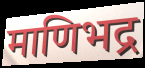
माणिभद्र